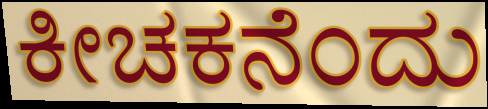
ಕೀಚಕನೆಂದು